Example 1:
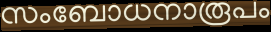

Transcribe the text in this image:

സംബോധനാരൂപം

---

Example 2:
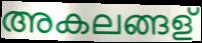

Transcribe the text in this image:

അകലങ്ങള്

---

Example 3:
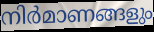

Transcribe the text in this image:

നിർമാണങ്ങളും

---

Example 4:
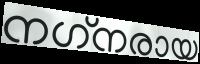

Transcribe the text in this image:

നഗ്‌നരായ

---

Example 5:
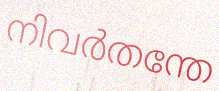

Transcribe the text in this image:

നിവർതന്തേ